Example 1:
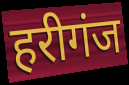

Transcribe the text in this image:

हरीगंज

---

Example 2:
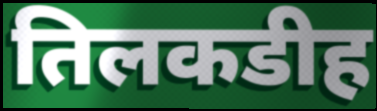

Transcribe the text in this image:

तिलकडीह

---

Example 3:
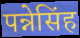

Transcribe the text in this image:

पन्नेसिंह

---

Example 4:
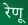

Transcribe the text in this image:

रेणू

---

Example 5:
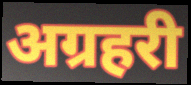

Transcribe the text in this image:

अग्रहरी